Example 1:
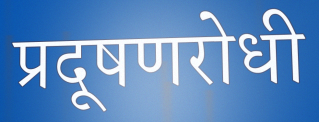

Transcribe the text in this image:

प्रदूषणरोधी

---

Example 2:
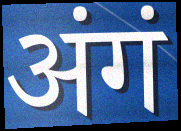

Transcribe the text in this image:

अंगं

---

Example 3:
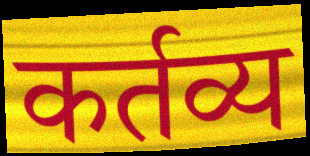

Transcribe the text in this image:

कर्तव्य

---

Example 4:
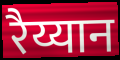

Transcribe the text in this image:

रैय्यान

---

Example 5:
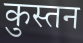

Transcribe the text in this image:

कुस्तन